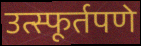
उत्स्फूर्तपणे